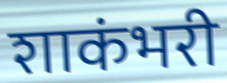
शाकंभरी